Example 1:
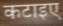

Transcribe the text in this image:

कटाइए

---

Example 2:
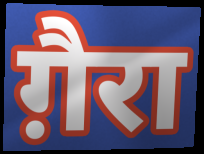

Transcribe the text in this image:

ग़ैरा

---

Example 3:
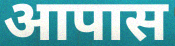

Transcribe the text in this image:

आपास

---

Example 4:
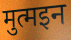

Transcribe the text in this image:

मुत्मइन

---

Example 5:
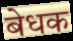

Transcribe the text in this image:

बेधक